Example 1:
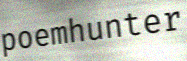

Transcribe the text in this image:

poemhunter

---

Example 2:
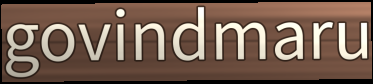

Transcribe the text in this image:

govindmaru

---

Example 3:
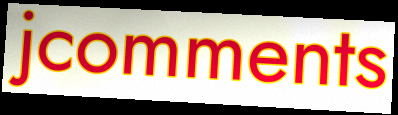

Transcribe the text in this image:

jcomments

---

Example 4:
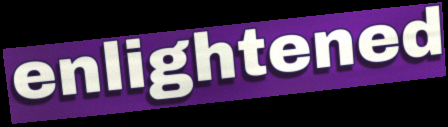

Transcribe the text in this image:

enlightened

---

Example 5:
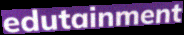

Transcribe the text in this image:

edutainment